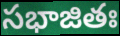
సభాజితః